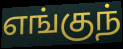
எங்குந்